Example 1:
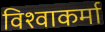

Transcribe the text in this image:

विश्वाकर्मा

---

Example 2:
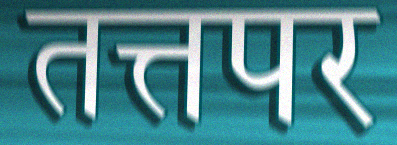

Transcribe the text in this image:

तत्तपर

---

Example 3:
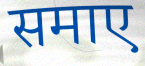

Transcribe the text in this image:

समाए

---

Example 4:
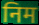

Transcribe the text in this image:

निम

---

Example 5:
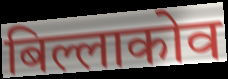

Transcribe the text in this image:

बिल्लाकोव